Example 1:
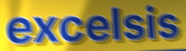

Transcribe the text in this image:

excelsis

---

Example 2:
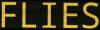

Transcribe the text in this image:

FLIES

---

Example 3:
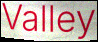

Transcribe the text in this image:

Valley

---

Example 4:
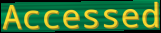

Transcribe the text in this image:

Accessed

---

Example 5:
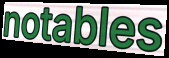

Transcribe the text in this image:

notables